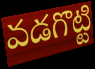
వడగొట్టి